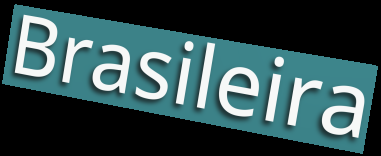
Brasileira